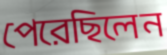
পেরেছিলেন